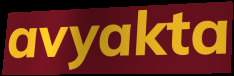
avyakta